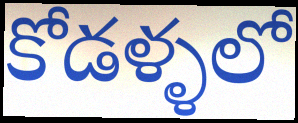
కోడళ్ళలో